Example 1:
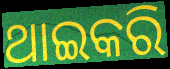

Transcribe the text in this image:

ଥାଇକରି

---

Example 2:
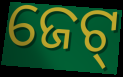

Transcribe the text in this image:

ଜେଟ୍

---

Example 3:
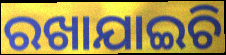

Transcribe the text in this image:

ରଖାଯାଇଚି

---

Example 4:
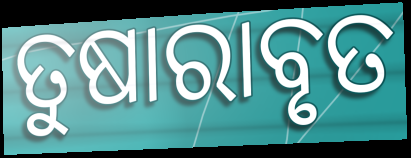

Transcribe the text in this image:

ତୁଷାରାବୃତ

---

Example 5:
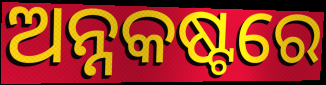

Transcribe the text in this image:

ଅନ୍ନକଷ୍ଟରେ